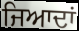
ਜਿਆਦਾਂ